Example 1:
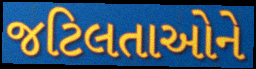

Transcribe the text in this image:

જટિલતાઓને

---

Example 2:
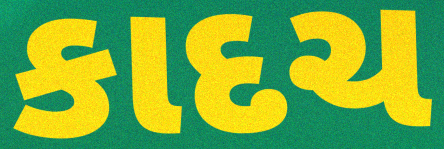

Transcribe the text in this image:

કાદચ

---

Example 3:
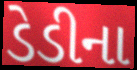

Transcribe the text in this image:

ડેડીના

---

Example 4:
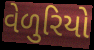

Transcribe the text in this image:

વેળુરિયો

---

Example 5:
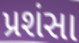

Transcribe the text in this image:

પ્રશંસા